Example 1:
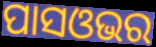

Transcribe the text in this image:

ପାସଓଭର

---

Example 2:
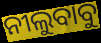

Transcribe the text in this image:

ନୀଲୁବାବୁ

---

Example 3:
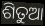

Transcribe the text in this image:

ଶିତୁଆ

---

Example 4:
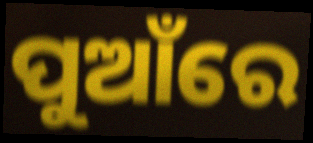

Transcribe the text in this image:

ପୁଆଁରେ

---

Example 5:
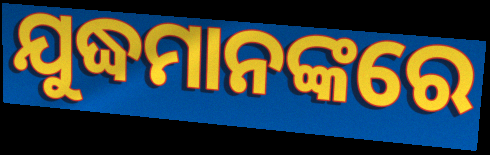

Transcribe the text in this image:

ଯୁଦ୍ଧମାନଙ୍କରେ